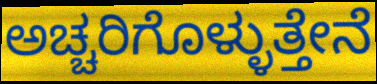
ಅಚ್ಚರಿಗೊಳ್ಳುತ್ತೇನೆ